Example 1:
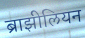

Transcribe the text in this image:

ब्राझीलियन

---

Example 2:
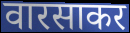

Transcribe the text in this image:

वारसाकर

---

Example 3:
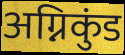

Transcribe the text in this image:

अग्निकुंड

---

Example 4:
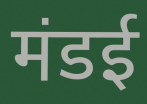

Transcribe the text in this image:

मंडई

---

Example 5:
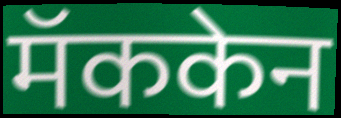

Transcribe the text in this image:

मॅककेन